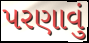
પરણાવું